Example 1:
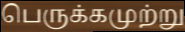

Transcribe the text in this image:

பெருக்கமுற்று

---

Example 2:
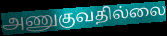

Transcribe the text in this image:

அணுகுவதில்லை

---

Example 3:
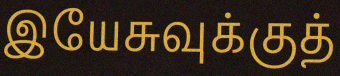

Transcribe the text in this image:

இயேசுவுக்குத்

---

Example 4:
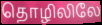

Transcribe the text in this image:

தொழிலிலே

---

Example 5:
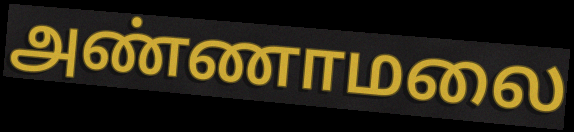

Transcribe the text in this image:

அண்ணாமலை